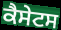
ਕੈਸੇਟਸ